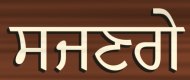
ਸਜਣਗੇ